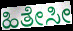
ಹಿತೇಸೀ